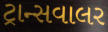
ટ્રાન્સવાલર